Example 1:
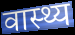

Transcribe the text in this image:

वास्थ्य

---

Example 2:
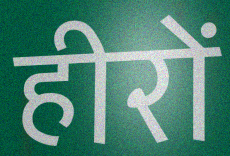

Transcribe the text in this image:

हीरों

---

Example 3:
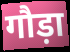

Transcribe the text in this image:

गौड़ा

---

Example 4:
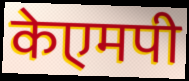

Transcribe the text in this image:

केएमपी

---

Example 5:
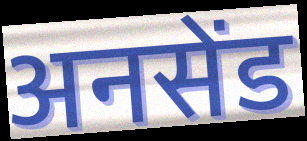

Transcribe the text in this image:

अनसेंड